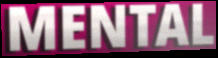
MENTAL